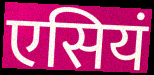
एसियं